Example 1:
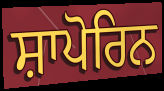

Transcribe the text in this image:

ਸ਼ਾਪੋਰਿਨ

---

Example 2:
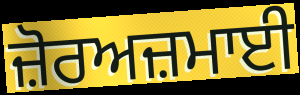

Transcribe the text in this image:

ਜ਼ੋਰਅਜ਼ਮਾਈ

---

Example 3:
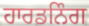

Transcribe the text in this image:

ਹਾਰਡਨਿੰਗ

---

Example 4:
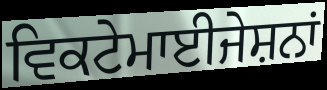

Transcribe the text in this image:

ਵਿਕਟੇਮਾਈਜੇਸ਼ਨਾਂ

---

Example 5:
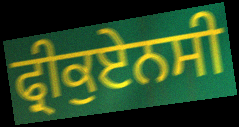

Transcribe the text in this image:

ਫ੍ਰੀਕੁਏਨਸੀ